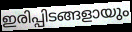
ഇരിപ്പിടങ്ങളായും